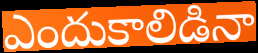
ఎందుకాలిడినా